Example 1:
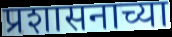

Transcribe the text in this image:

प्रशासनाच्या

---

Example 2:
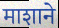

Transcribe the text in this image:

माशाने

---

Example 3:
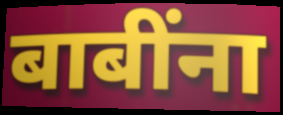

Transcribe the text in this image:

बाबींना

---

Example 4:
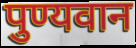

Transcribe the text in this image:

पुण्यवान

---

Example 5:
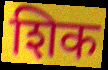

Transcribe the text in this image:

शिक